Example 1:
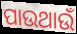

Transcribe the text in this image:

ପାଉଥାଉଁ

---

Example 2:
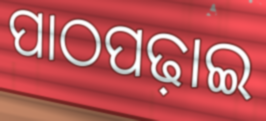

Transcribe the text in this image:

ପାଠପଢ଼ାଇ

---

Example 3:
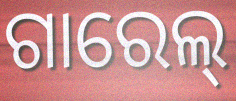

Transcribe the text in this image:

ଗାରେଲ୍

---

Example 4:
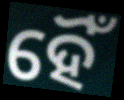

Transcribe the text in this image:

ହୈଁ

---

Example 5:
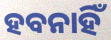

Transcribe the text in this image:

ହବନାହିଁ